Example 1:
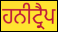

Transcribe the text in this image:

ਹਨੀਟ੍ਰੈਪ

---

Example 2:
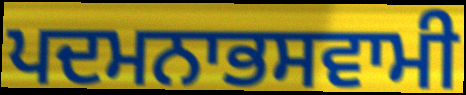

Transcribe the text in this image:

ਪਦਮਨਾਭਸਵਾਮੀ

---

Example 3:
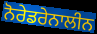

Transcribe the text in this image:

ਨੋਰੇਡਰੇਨਾਲੀਨ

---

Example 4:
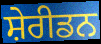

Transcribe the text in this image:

ਸ਼ੇਰੀਡਨ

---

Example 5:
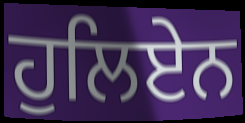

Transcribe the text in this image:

ਹੁਲਿਏਨ